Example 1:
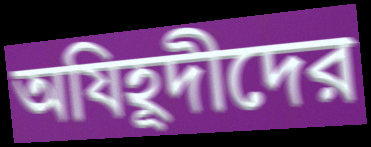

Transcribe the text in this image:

অযিহূদীদের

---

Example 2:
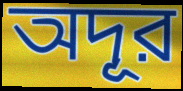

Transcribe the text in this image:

অদূর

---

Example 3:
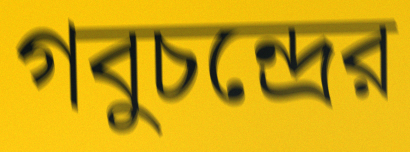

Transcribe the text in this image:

গবুচন্দ্রের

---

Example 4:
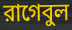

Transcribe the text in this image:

রাগেবুল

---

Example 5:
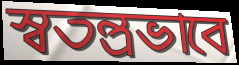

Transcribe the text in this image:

স্বতন্ত্রভাবে